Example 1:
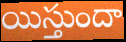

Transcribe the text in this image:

యిస్తుందా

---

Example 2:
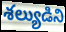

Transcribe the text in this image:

శల్యుడిని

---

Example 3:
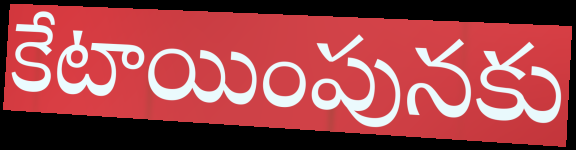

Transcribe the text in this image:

కేటాయింపునకు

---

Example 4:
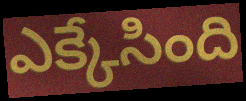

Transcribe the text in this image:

ఎక్కేసింది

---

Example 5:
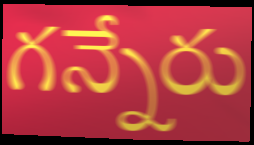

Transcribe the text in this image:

గన్నేరు